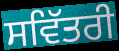
ਸਵਿੱਤਰੀ